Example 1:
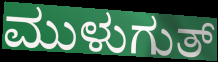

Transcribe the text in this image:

ಮುಳುಗುತ್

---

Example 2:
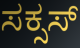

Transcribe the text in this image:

ಸಕ್ಸಸ್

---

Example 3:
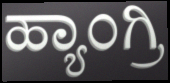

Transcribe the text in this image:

ಹ್ಯಾಂಗ್ರಿ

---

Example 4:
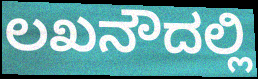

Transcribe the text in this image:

ಲಖನೌದಲ್ಲಿ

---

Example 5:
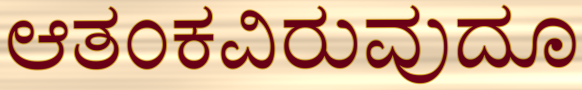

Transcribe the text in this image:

ಆತಂಕವಿರುವುದೂ